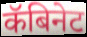
कॅबिनेट